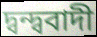
দ্বন্দ্ববাদী